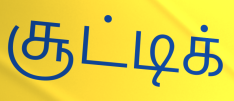
சூட்டிக்